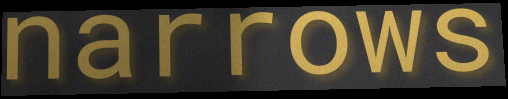
narrows